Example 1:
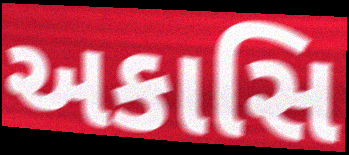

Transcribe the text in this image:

અકાસિ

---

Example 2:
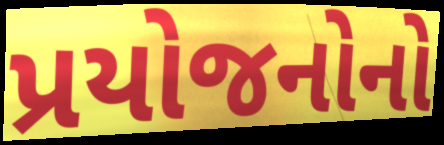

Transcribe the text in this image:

પ્રયોજનોનો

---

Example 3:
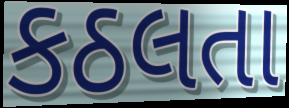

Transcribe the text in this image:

કઠલતા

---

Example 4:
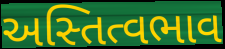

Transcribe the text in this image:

અસ્તિત્વભાવ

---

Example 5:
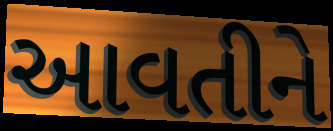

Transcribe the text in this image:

આવતીને